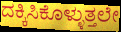
ದಕ್ಕಿಸಿಕೊಳ್ಳುತ್ತಲೇ